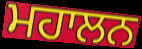
ਮਹਾਲਨ